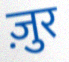
ज़ुर